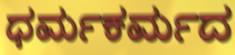
ಧರ್ಮಕರ್ಮದ